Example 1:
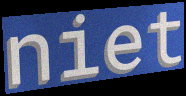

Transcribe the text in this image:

niet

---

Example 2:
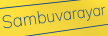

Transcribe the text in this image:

Sambuvarayar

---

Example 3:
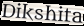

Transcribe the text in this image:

Dikshita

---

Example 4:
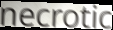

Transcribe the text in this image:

necrotic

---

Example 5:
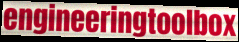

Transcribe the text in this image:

engineeringtoolbox